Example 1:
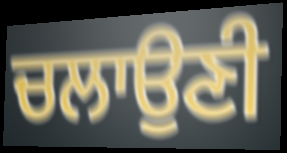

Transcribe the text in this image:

ਚਲਾਉਣੀ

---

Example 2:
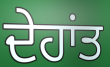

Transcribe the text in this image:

ਦੇਹਾਂਤ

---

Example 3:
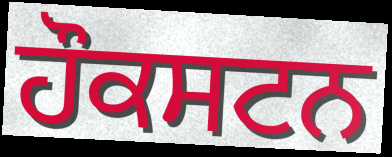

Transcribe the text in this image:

ਹੌਕਸਟਨ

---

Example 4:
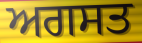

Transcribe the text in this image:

ਅਗਸਤ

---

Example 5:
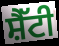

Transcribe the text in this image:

ਸ਼ੈੱਟੀ